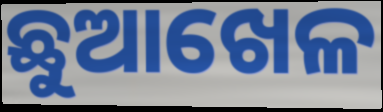
ଛୁଆଖେଳ